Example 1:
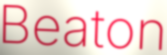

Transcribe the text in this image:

Beaton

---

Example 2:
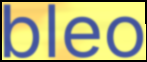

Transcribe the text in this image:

bleo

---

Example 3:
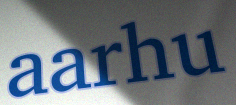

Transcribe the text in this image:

aarhu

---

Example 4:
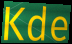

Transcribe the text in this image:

Kde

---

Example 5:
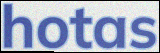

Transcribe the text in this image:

hotas